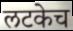
लटकेच